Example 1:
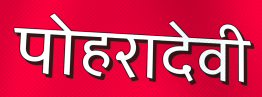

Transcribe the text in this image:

पोहरादेवी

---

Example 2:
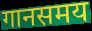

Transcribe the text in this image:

गानसमय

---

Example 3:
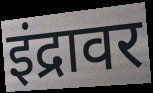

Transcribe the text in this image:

इंद्रावर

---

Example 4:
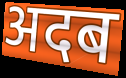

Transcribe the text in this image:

अदब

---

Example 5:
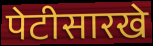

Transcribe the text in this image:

पेटीसारखे